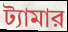
ট্যামার